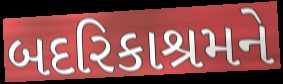
બદરિકાશ્રમને